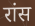
रांस